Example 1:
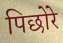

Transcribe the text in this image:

पिछोरे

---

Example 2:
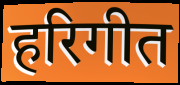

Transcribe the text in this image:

हरिगीत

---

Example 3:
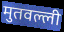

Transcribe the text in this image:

मुतवल्ली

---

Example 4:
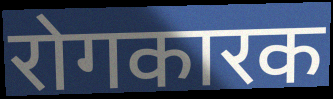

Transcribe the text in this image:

रोगकारक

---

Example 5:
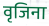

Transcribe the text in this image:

वृजिना